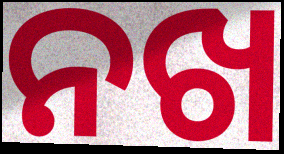
ନଖ